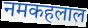
नमकहलाल